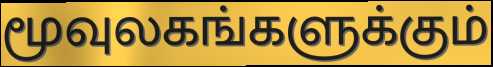
மூவுலகங்களுக்கும்